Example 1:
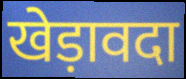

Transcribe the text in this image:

खेड़ावदा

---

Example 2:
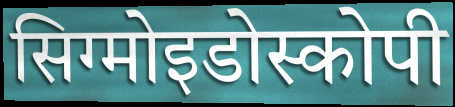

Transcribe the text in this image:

सिग्मोइडोस्कोपी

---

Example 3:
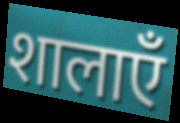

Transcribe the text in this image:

शालाएँ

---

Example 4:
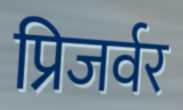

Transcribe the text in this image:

प्रिजर्वर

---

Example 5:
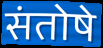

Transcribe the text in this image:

संतोषे